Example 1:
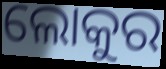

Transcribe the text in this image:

ଲୋକୁର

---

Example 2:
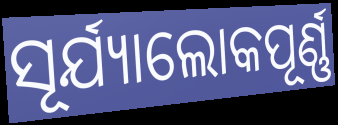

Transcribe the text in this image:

ସୂର୍ଯ୍ୟାଲୋକପୂର୍ଣ୍ଣ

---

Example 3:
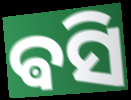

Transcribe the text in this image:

ଵସି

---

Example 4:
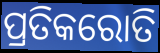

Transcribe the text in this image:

ପ୍ରତିକରୋତି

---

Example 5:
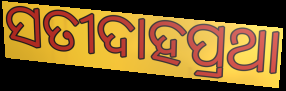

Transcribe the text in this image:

ସତୀଦାହପ୍ରଥା